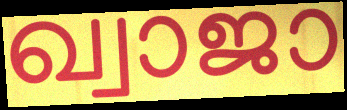
ഖ്വാജാ